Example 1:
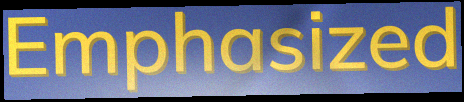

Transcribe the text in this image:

Emphasized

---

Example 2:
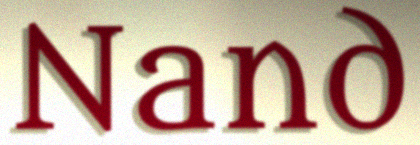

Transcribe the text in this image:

Nand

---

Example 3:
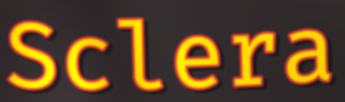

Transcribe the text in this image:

Sclera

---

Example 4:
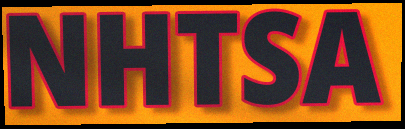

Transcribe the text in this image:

NHTSA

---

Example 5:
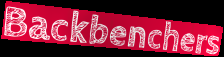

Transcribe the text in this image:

Backbenchers